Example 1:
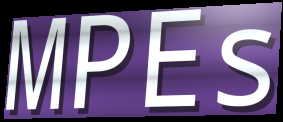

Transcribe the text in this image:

MPEs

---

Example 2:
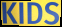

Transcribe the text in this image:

KIDS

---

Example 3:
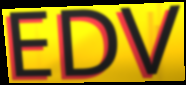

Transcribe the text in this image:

EDV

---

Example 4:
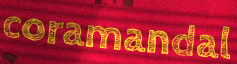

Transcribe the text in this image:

coramandal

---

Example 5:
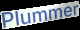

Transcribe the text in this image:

Plummer